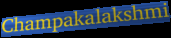
Champakalakshmi